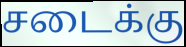
சடைக்கு